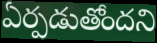
ఏర్పడుతోందని